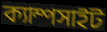
ক্যাম্পসাইট